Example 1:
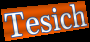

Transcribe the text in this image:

Tesich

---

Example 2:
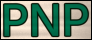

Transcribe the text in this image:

PNP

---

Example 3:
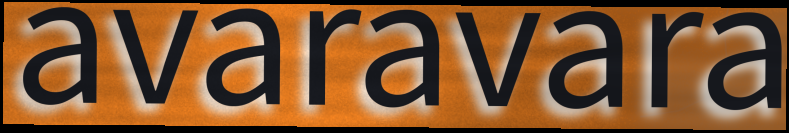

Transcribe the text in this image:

avaravara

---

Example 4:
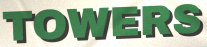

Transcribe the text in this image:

TOWERS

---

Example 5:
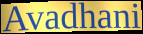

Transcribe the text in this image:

Avadhani